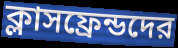
ক্লাসফ্রেন্ডদের